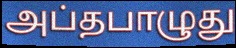
அப்தபாழுது